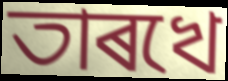
তাৰখে